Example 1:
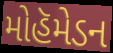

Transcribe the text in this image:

મોહૅમેડન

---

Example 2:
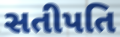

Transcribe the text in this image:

સતીપતિ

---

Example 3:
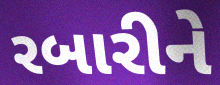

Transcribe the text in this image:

રબારીને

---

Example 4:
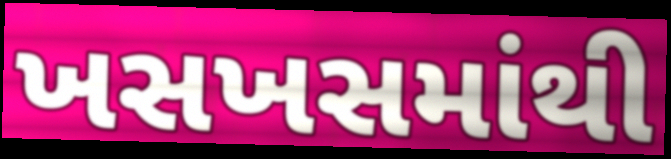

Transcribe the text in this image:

ખસખસમાંથી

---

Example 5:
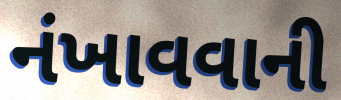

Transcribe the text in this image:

નંખાવવાની